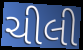
ચીલી